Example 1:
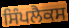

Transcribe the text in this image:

ਸਿੰਪਲੈਕਸ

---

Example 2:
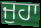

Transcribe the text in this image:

ਜੁਹਾ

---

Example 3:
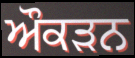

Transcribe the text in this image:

ਔਕੜਨ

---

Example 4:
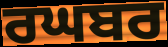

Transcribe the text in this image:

ਰਘਬਰ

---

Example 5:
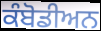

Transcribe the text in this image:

ਕੰਬੋਡੀਅਨ